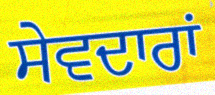
ਸੇਵਦਾਰਾਂ